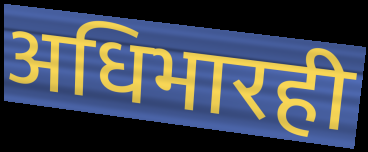
अधिभारही